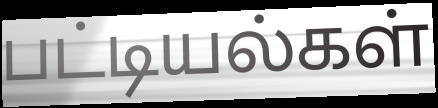
பட்டியல்கள்